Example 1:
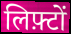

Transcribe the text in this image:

लिफ़्टों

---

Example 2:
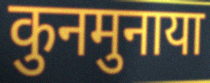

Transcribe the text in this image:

कुनमुनाया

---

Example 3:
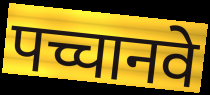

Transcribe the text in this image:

पच्चानवे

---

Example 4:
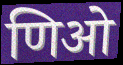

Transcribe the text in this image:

णिओ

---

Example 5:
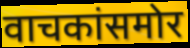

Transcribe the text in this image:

वाचकांसमोर